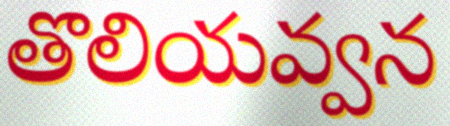
తొలియవ్వన